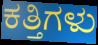
ಕತ್ತಿಗಳು